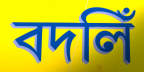
বদলিঁ